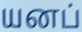
யனப்